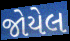
જોયેલ